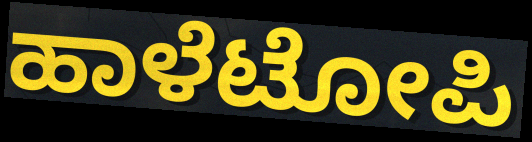
ಹಾಳೆಟೋಪಿ